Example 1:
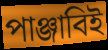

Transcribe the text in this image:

পাঞ্জাবিই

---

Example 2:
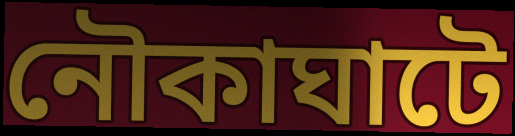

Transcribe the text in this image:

নৌকাঘাটে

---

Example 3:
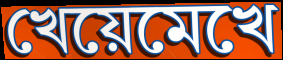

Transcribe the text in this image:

খেয়েমেখে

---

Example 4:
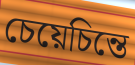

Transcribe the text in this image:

চেয়েচিন্তে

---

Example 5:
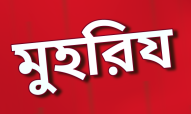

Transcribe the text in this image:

মুহরিয